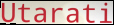
Utarati